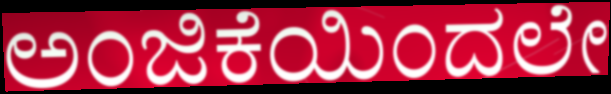
ಅಂಜಿಕೆಯಿಂದಲೇ